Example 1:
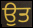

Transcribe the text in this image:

ਉਤ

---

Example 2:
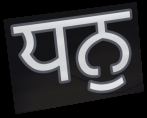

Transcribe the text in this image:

ਧਨੁ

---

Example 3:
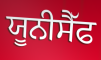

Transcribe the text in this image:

ਯੂਨੀਸੈੱਫ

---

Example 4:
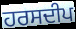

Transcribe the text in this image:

ਹਰਸਦੀਪ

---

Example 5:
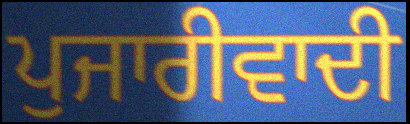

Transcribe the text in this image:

ਪੁਜਾਰੀਵਾਦੀ